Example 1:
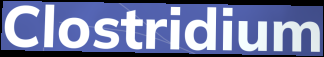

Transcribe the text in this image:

Clostridium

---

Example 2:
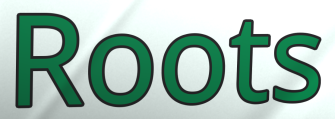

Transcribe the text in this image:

Roots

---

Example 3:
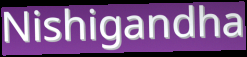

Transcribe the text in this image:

Nishigandha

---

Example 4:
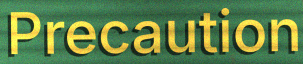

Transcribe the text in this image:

Precaution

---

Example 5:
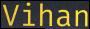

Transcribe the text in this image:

Vihan